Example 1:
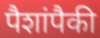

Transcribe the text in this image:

पैशांपैकी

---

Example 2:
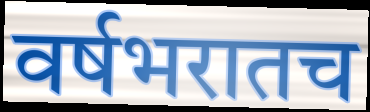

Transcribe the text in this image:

वर्षभरातच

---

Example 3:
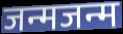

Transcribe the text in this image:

जन्मजन्म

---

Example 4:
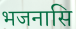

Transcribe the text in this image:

भजनासि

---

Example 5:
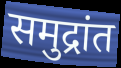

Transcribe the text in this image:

समुद्रांत